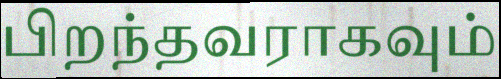
பிறந்தவராகவும்